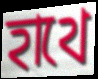
হাথে